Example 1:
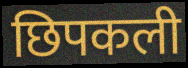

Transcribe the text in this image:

छिपकली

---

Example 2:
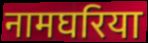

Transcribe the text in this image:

नामघरिया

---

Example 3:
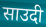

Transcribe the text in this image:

साउदी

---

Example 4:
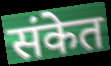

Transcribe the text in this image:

संकेत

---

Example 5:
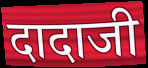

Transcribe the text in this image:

दादाजी